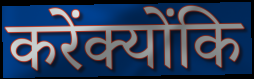
करेंक्योंकि